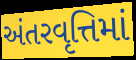
અંતરવૃત્તિમાં